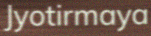
Jyotirmaya